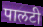
पालटी